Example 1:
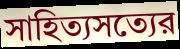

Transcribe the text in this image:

সাহিত্যসত্যের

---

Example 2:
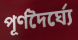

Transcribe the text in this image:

পূর্ণদৈর্ঘ্যে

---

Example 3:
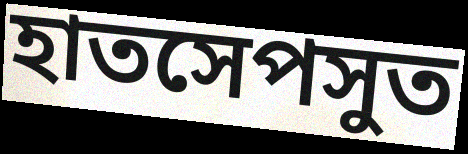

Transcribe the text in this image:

হাতসেপসুত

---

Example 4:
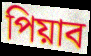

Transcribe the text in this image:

পিয়াব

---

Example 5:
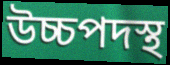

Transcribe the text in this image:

উচ্চপদস্থ